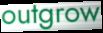
outgrow